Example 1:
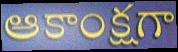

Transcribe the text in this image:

ఆకాంక్షగా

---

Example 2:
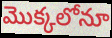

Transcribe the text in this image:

మొక్కలోనూ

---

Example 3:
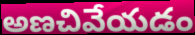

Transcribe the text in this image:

అణచివేయడం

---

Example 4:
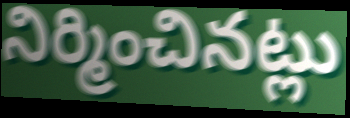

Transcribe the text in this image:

నిర్మించినట్లు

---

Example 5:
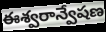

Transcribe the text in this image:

ఈశ్వరాన్వేషణ